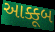
આક્કૂબ